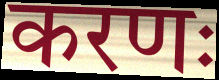
करणः